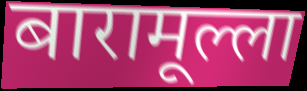
बारामूल्ला